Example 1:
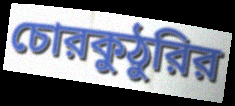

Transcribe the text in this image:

চোরকুঠুরির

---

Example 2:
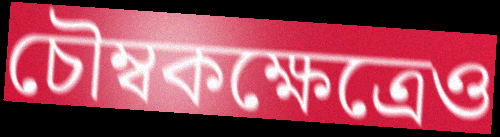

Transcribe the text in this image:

চৌম্বকক্ষেত্রেও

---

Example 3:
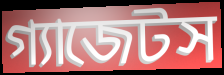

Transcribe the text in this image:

গ্যাজেটস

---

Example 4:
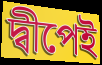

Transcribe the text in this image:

দ্বীপেই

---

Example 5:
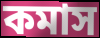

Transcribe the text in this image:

কমাস